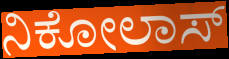
ನಿಕೋಲಾಸ್